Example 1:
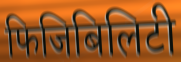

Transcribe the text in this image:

फिजिबिलिटी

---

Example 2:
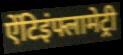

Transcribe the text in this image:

ऐंटिइंफ्लामेट्री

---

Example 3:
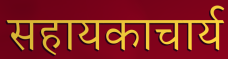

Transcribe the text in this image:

सहायकाचार्य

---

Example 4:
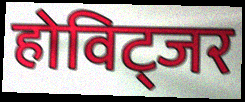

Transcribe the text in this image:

होविट्जर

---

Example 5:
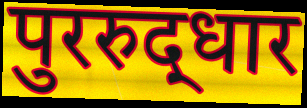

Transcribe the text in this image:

पुररुद्धार